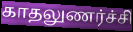
காதலுணர்ச்சி